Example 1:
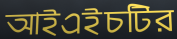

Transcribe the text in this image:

আইএইচটির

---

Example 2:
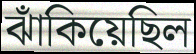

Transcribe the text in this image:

ঝাঁকিয়েছিল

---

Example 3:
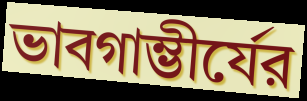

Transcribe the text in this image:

ভাবগাম্ভীর্যের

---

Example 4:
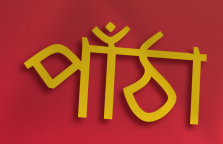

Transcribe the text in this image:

পাঁঠা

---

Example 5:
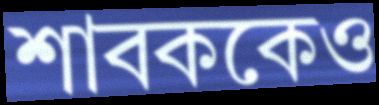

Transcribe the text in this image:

শাবককেও